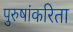
पुरुषांकरिता